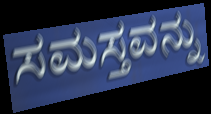
ಸಮಸ್ತವನ್ನು